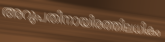
അറുപതിനായിരത്തിലധികം